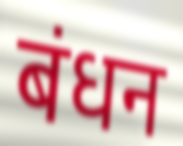
बंधन